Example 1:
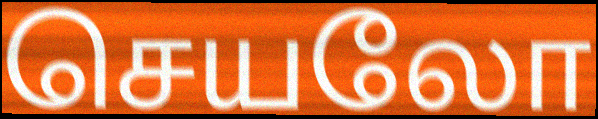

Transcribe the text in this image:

செயலோ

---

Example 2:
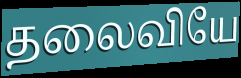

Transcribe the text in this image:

தலைவியே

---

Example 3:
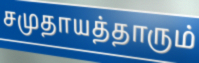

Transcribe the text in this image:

சமுதாயத்தாரும்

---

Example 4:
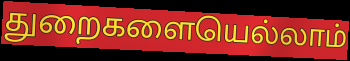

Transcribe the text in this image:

துறைகளையெல்லாம்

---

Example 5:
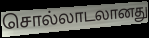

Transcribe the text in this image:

சொல்லாடலானது